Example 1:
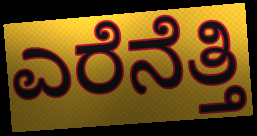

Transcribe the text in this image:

ಎರೆನೆತ್ತಿ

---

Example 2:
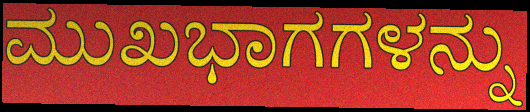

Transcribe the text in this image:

ಮುಖಭಾಗಗಳನ್ನು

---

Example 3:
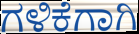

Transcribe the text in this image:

ಗಳಿಕೆಗಾಗಿ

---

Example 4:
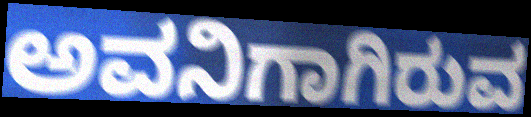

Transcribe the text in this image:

ಅವನಿಗಾಗಿರುವ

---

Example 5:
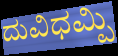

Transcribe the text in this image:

ದುವಿಧಮ್ಪಿ